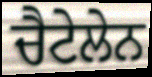
ਚੈਟੇਲੇਨ